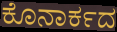
ಕೊನಾರ್ಕದ